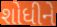
શોધીને